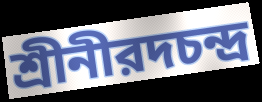
শ্রীনীরদচন্দ্র